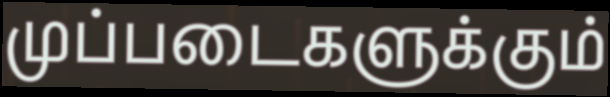
முப்படைகளுக்கும்